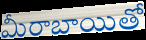
మీరాబాయితో